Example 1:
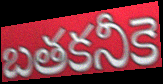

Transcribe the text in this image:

బతకనీకె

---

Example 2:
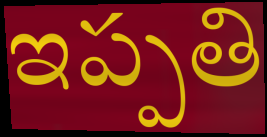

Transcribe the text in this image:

ఇప్పతి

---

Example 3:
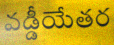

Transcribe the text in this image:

వడ్డీయేతర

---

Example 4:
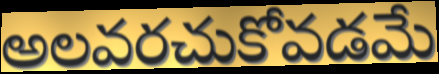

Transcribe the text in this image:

అలవరచుకోవడమే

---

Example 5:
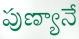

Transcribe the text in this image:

పుణ్యానే